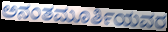
ಅನಂತಮೂರ್ತಿಯವರ